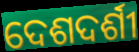
ଦେଶଦର୍ଶୀ